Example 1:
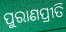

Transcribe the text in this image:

ପୁରାଣପ୍ରୀତି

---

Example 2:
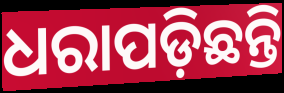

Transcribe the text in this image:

ଧରାପଡ଼ିଛନ୍ତି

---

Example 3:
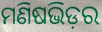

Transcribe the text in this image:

ମଣିଷଭିଡ଼ର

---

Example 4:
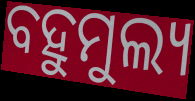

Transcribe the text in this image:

ବହୁମୁଲ୍ୟ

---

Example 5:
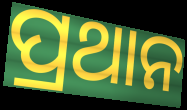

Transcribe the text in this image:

ପ୍ରଥାନ